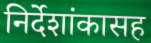
निर्देशांकासह